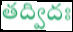
తద్విదః